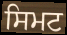
ਸਿਮਟ